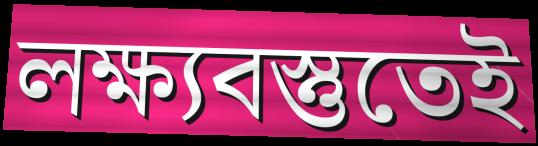
লক্ষ্যবস্তুতেই